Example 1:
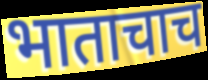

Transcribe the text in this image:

भाताचाच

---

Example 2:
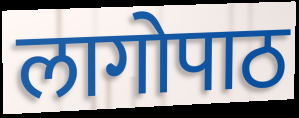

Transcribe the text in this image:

लागोपाठ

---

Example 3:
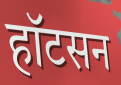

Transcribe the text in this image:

हॉटसन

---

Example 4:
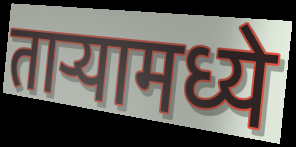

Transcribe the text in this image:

ताऱ्यामध्ये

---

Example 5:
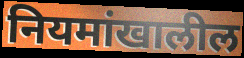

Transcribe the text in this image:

नियमांखालील